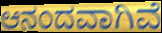
ಆನಂದವಾಗಿವೆ